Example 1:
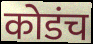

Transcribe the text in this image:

कोडंच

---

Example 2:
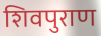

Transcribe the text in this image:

शिवपुराण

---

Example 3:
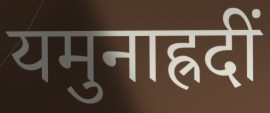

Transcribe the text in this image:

यमुनाह्रदीं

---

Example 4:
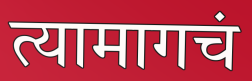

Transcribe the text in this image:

त्यामागचं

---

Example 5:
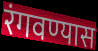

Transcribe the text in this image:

रंगवण्यास